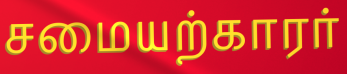
சமையற்காரர்